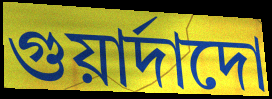
গুয়ার্দাদো